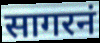
सागरनं